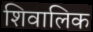
शिवालिक